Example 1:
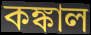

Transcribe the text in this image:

কঙ্কাল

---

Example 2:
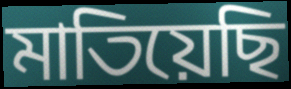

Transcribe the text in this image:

মাতিয়েছি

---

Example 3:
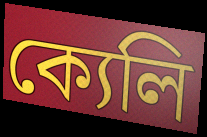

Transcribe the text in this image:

ক্যেলি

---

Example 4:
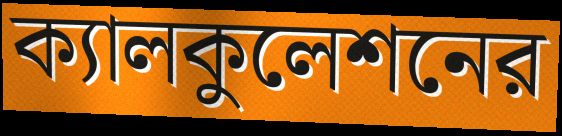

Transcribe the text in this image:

ক্যালকুলেশনের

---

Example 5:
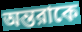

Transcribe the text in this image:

অন্তরাকে